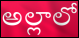
అల్లాలో